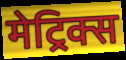
मेट्रिक्स